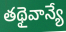
తథైవాన్యే